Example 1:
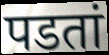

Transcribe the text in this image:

पडतां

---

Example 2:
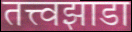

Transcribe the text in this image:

तत्त्वझाडा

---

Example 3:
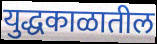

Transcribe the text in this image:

युद्धकाळातील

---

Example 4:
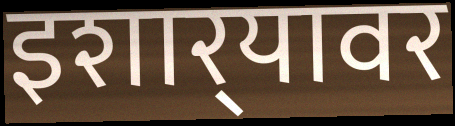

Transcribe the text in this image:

इशार्‍यावर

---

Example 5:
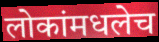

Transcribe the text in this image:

लोकांमधलेच